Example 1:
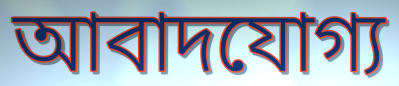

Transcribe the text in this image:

আবাদযোগ্য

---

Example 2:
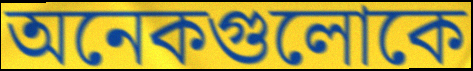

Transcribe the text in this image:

অনেকগুলোকে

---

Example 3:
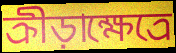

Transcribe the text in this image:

ক্রীড়াক্ষেত্রে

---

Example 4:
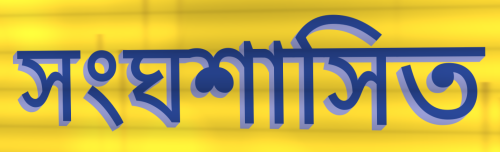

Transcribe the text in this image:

সংঘশাসিত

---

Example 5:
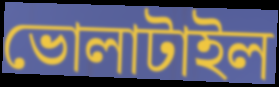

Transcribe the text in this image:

ভোলাটাইল